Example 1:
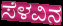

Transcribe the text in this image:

ಸೆಳವಿನ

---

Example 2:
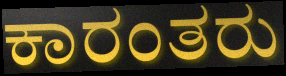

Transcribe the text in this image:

ಕಾರಂತರು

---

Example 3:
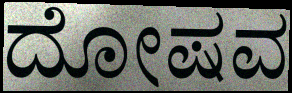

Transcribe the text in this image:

ದೋಷವ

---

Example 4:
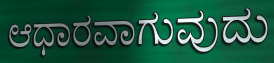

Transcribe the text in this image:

ಆಧಾರವಾಗುವುದು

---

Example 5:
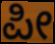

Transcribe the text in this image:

ಪೀ